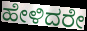
ಹೇಳಿದರೇ